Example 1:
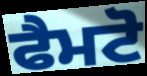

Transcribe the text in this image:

ਫੈਮਟੋ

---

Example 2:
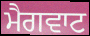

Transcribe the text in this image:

ਮੈਗਵਾਟ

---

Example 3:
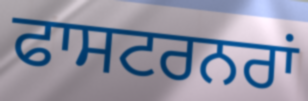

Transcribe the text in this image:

ਫਾਸਟਰਨਰਾਂ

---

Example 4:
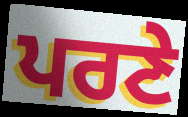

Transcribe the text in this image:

ਪਰਣੇ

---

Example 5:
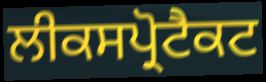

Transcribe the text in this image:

ਲੀਕਸਪ੍ਰੋਟੈਕਟ